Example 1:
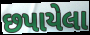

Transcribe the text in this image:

છપાયેલા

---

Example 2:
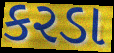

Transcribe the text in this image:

કરડા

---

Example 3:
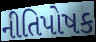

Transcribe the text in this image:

નીતિપોષક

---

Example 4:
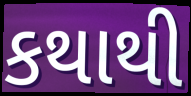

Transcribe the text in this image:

કથાથી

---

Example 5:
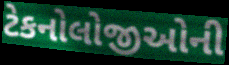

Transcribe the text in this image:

ટેકનોલોજીઓની